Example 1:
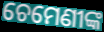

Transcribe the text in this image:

ଚେମେଣୀଙ୍କ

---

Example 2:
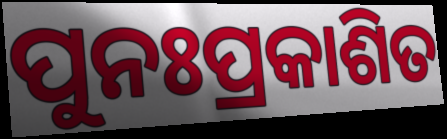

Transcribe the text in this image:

ପୁନଃପ୍ରକାଶିତ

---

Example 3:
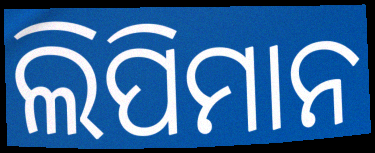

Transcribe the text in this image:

ଲିପିମାନ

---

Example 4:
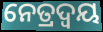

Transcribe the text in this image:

ନେତ୍ରଦ୍ୱୟ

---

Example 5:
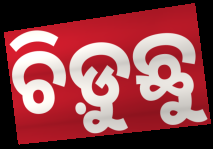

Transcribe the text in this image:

ଚିଡ଼ୁଛୁ